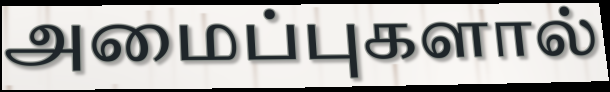
அமைப்புகளால்